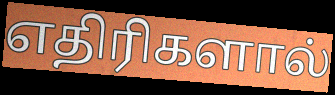
எதிரிகளால்